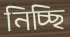
নিচ্ছি